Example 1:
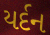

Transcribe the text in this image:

યર્દન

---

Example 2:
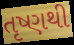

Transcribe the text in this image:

તૃષ્ણથી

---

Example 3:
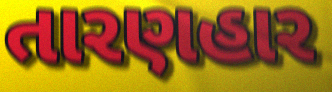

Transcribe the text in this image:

તારણહાર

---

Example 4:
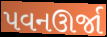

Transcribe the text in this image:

પવનઊર્જા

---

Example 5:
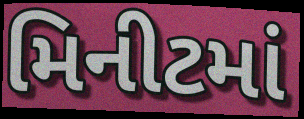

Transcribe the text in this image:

મિનીટમાં